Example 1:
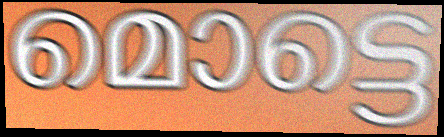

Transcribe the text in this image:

മൊട്ടെ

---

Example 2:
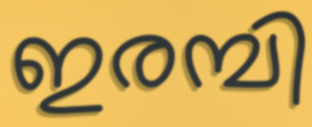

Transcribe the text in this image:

ഇരമ്പി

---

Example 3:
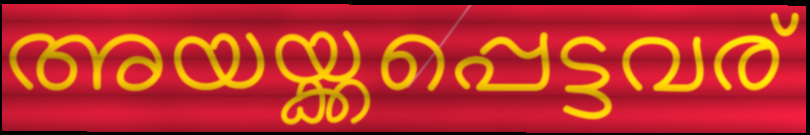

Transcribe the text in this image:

അയയ്ക്കപ്പെട്ടവര്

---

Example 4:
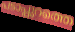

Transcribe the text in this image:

പടാപ്പുറത്തെ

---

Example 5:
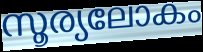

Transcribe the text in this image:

സൂര്യലോകം